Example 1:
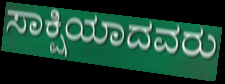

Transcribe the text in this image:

ಸಾಕ್ಷಿಯಾದವರು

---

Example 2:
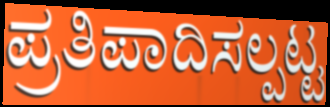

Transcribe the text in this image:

ಪ್ರತಿಪಾದಿಸಲ್ಪಟ್ಟ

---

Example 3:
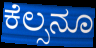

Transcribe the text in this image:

ಕೆಲ್ಸನೂ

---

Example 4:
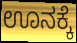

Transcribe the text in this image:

ಊನಕ್ಕೆ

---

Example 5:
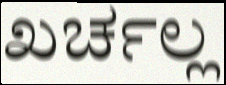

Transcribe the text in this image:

ಖರ್ಚಲ್ಲ